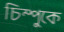
চিম্পুকে